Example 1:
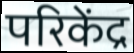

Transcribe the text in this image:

परिकेंद्र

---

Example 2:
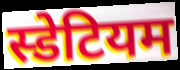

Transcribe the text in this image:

स्डेटियम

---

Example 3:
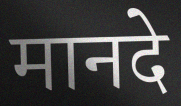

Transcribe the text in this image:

मानदे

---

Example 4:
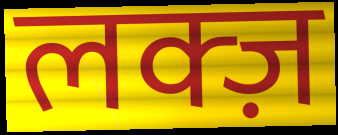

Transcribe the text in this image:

लक्ज़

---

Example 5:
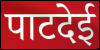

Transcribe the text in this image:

पाटदेई